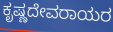
ಕೃಷ್ಣದೇವರಾಯರ